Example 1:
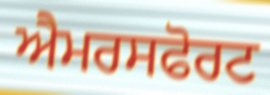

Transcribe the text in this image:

ਐਮਰਸਫੋਰਟ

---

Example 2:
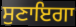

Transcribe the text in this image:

ਸੁਣਾਇਗਾ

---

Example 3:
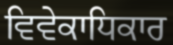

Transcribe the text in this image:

ਵਿਵੇਕਾਧਿਕਾਰ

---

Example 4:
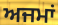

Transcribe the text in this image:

ਅਜਮਾਂ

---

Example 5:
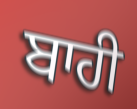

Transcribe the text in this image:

ਬਾਹੀ